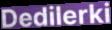
Dedilerki